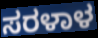
ಸರಳಾಳ